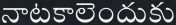
నాటకాలెందుకు